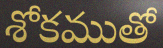
శోకముతో